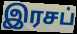
இரசப்